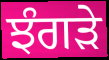
ਝੰਗੜੇ